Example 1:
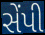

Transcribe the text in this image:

સેંપી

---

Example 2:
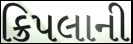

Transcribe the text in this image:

ક્રિપલાની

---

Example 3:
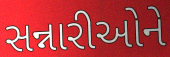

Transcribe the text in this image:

સન્નારીઓને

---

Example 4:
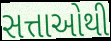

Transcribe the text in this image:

સત્તાઓથી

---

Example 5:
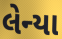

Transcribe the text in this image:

લેન્યા